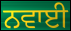
ਨਵਾਈ